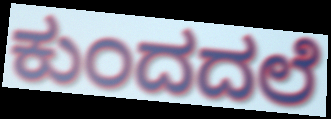
ಕುಂದದಲೆ